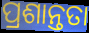
ପ୍ରଶାନ୍ତତା